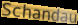
Schandau